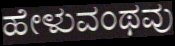
ಹೇಳುವಂಥವು